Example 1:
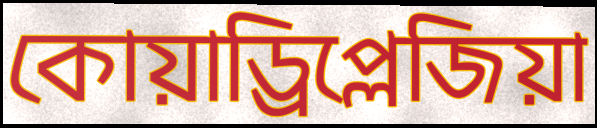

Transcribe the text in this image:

কোয়াড্রিপ্লেজিয়া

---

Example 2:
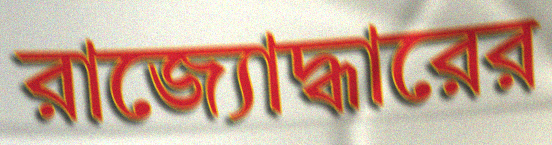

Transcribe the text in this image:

রাজ্যোদ্ধারের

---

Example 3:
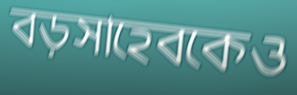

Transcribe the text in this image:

বড়সাহেবকেও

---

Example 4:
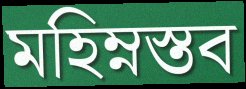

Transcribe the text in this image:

মহিম্নস্তব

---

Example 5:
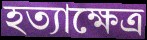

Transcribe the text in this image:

হত্যাক্ষেত্র